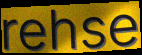
rehse